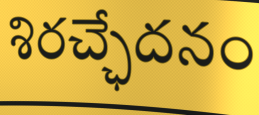
శిరచ్ఛేదనం